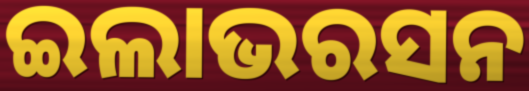
ଇଲାଭରସନ